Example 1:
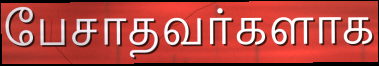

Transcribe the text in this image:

பேசாதவர்களாக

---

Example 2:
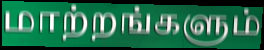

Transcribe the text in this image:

மாற்றங்களும்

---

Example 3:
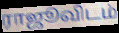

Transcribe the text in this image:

ராஜூவிடம்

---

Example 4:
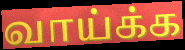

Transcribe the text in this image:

வாய்க்க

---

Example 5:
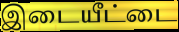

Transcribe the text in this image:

இடையீட்டை